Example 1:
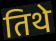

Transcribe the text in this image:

तिथे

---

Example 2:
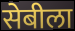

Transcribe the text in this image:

सेबीला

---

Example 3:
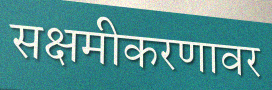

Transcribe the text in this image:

सक्षमीकरणावर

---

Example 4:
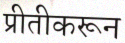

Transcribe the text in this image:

प्रीतीकरून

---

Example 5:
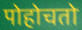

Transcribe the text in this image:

पोहोचतो